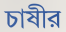
চাষীর